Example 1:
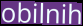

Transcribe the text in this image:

obilnih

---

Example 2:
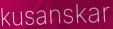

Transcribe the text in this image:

kusanskar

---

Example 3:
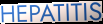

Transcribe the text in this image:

HEPATITIS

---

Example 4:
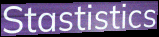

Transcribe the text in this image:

Stastistics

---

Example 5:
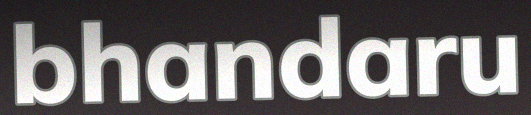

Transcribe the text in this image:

bhandaru